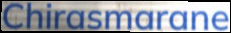
Chirasmarane